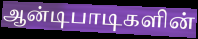
ஆன்டிபாடிகளின்